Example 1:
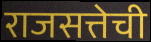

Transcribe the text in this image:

राजसत्तेची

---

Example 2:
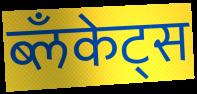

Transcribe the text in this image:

ब्लॅंकेट्स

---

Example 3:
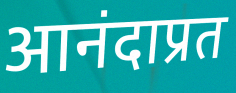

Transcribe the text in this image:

आनंदाप्रत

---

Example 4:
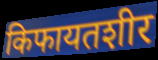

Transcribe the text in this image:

किफायतशीर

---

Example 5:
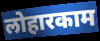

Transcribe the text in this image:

लोहारकाम